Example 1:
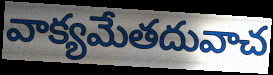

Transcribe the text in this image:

వాక్యమేతదువాచ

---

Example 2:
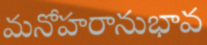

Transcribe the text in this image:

మనోహరానుభావ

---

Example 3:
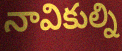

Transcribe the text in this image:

నావికుల్ని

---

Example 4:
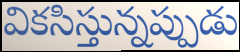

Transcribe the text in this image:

వికసిస్తున్నప్పుడు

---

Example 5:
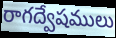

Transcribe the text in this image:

రాగద్వేషములు